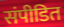
संपीडित